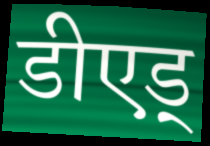
डीएड्